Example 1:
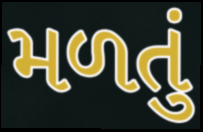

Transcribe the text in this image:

મળતું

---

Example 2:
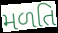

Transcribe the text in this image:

મળતિ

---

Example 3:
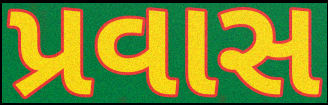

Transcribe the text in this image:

પ્રવાસ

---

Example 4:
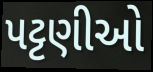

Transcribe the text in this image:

પટ્ટણીઓ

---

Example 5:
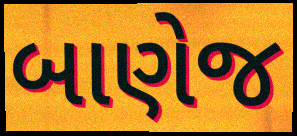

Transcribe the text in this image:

બાણેજ